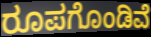
ರೂಪಗೊಂಡಿವೆ